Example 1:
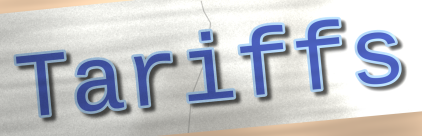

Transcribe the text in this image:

Tariffs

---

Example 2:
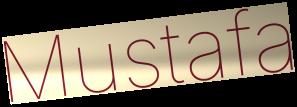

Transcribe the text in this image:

Mustafa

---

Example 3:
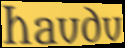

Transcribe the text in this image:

haudu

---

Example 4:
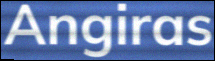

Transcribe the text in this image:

Angiras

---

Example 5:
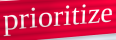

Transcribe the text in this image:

prioritize